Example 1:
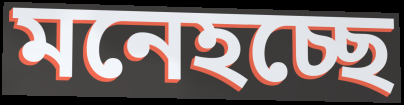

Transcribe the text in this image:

মনেহচ্ছে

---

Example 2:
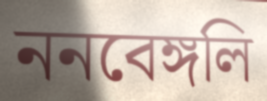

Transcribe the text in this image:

ননবেঙ্গলি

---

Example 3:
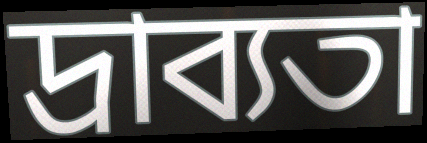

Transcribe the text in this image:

দ্রাব্যতা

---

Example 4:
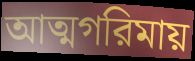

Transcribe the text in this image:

আত্মগরিমায়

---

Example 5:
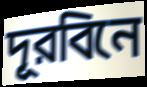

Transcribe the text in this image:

দূরবিনে